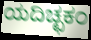
ಯದಿಚ್ಛಕಂ